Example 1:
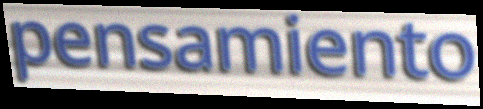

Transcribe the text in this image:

pensamiento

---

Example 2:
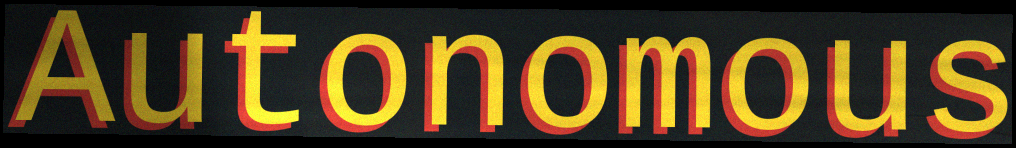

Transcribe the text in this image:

Autonomous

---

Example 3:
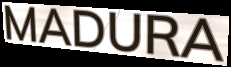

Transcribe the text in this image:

MADURA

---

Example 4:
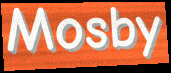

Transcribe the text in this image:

Mosby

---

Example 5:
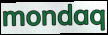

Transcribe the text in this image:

mondaq